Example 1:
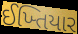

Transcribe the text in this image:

ઈખ્તિયાર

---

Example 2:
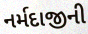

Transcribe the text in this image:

નર્મદાજીની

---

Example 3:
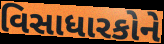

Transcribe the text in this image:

વિસાધારકોને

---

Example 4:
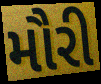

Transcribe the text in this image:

મૌરી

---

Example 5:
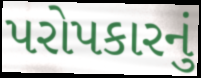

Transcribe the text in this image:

પરોપકારનું